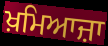
ਖ਼ਮਿਆਜ਼ਾ